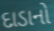
દાડાનો